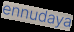
ennudaya